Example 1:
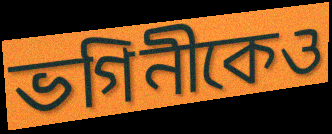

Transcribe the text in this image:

ভগিনীকেও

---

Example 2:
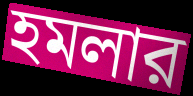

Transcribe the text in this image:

হমলার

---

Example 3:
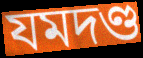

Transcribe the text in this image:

যমদণ্ড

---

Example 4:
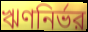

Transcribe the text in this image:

ঋণনির্ভর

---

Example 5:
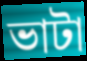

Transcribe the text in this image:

ভাটা